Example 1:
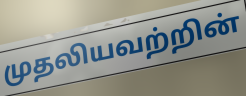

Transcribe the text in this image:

முதலியவற்றின்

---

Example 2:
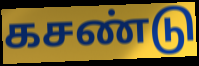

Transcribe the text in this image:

கசண்டு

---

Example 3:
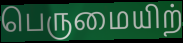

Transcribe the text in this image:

பெருமையிற்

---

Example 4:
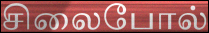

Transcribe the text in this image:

சிலைபோல்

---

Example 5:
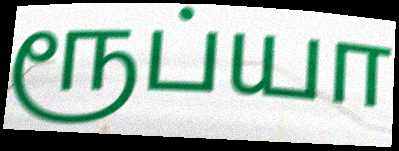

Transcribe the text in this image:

ரூப்யா